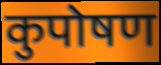
कुपोषण